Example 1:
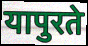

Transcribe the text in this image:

यापुरते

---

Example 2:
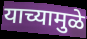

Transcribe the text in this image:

याच्यामुळे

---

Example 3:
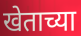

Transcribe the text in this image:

खेताच्या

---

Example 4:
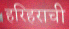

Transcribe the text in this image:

हरिहराची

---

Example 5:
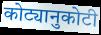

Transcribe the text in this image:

कोट्यानुकोटी